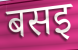
बसइ